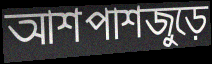
আশপাশজুড়ে